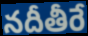
నదీతీరే